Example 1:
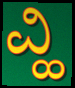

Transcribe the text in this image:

ವ್ಹಿ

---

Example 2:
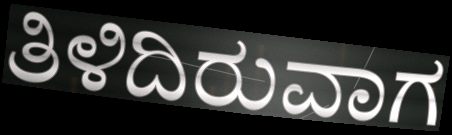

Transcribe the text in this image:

ತಿಳಿದಿರುವಾಗ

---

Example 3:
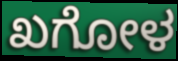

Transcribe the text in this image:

ಖಗೋಳ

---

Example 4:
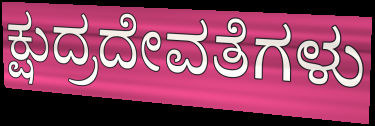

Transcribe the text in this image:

ಕ್ಷುದ್ರದೇವತೆಗಳು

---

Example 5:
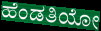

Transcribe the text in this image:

ಹೆಂಡತಿಯೋ